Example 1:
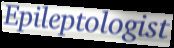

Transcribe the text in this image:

Epileptologist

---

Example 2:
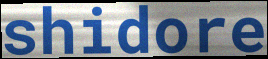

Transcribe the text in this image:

shidore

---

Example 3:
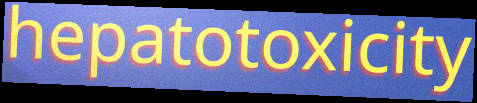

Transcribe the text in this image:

hepatotoxicity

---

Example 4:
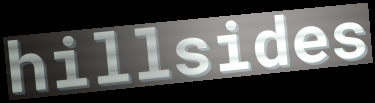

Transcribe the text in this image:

hillsides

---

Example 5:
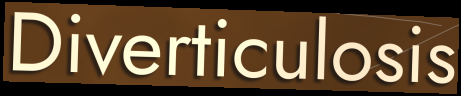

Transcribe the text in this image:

Diverticulosis